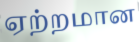
ஏற்றமான